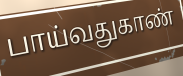
பாய்வதுகாண்